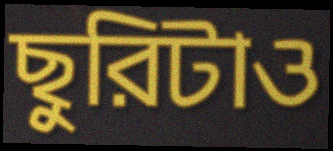
ছুরিটাও